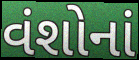
વંશોનાં